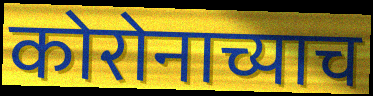
कोरोनाच्याच